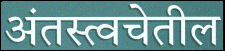
अंतस्त्वचेतील